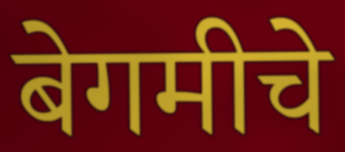
बेगमीचे